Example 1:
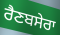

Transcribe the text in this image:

ਰੈਣਬਸੇਰਾ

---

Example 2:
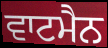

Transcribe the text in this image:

ਵਾਟਮੈਨ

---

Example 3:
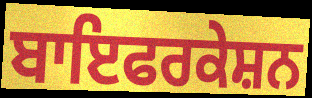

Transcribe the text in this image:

ਬਾਇਫਰਕੇਸ਼ਨ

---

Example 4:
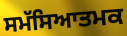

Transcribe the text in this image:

ਸਮੱਸਿਆਤਮਕ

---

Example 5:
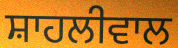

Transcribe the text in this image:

ਸ਼ਾਹਲੀਵਾਲ